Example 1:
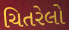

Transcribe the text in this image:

ચિતરેલો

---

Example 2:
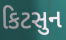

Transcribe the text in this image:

કિટસુન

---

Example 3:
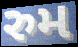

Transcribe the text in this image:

રુમ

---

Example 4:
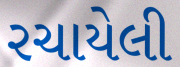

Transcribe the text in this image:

રચાયેલી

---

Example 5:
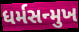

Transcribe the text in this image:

ધર્મસન્મુખ